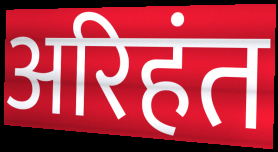
अरिहंत